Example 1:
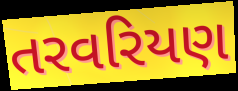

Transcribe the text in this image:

તરવરિયણ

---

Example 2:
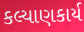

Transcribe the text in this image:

કલ્યાણકાર્ય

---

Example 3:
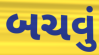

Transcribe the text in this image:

બચવું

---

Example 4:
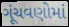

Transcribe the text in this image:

ગૂંચવણોમાં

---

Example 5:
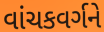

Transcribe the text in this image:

વાંચકવર્ગને